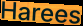
Harees